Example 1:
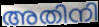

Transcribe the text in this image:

അതിനി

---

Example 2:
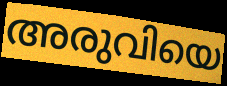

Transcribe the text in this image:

അരുവിയെ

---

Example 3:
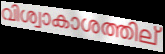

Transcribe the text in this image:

വിശ്വാകാശത്തില്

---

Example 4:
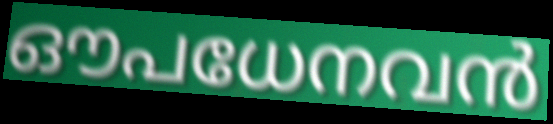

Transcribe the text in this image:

ഔപധേനവൻ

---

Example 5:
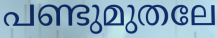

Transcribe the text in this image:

പണ്ടുമുതലേ